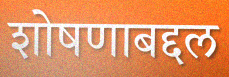
शोषणाबद्दल